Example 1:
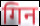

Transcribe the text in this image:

गिन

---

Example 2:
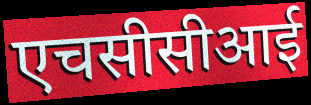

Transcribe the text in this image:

एचसीसीआई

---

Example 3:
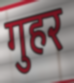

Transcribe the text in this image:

गुहर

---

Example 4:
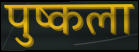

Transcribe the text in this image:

पुष्कला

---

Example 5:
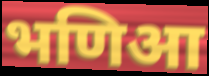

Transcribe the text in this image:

भणिआ